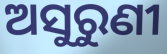
ଅସୁରୁଣୀ